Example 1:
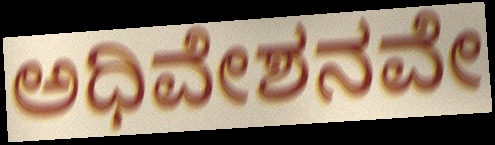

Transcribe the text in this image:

ಅಧಿವೇಶನವೇ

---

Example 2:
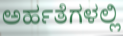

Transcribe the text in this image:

ಅರ್ಹತೆಗಳಲ್ಲಿ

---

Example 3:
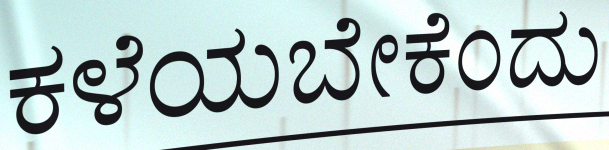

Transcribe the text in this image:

ಕಳೆಯಬೇಕೆಂದು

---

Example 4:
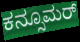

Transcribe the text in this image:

ಕನ್ಸೂಮರ್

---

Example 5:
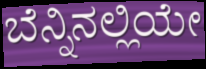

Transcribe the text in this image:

ಬೆನ್ನಿನಲ್ಲಿಯೇ